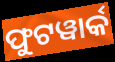
ଫୁଟୱାର୍କ